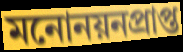
মনোনয়নপ্রাপ্ত